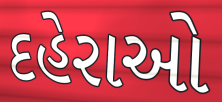
દહેરાઓ